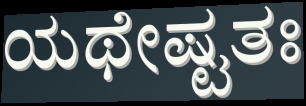
ಯಥೇಷ್ಟತಃ